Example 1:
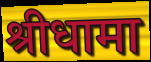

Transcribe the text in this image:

श्रीधामा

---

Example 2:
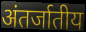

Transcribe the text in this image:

अंतर्जातीय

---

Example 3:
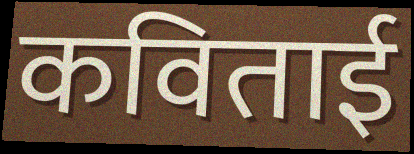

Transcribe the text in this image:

कविताई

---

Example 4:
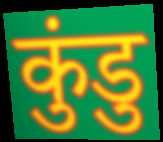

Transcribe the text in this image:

कुंडु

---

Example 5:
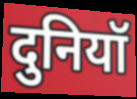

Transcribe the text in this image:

दुनियॉ